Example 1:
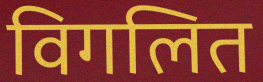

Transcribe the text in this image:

विगलित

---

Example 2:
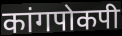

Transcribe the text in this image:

कांगपोकपी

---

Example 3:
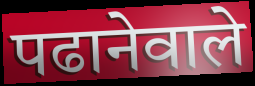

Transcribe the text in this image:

पढानेवाले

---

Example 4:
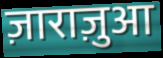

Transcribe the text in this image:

ज़ाराज़ुआ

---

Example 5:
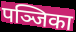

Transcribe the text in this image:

पञ्जिका